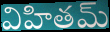
విహితమ్